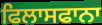
ਫਿਲਾਸਫਾਨਾ